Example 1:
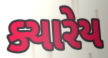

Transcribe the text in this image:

ક્યારેય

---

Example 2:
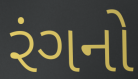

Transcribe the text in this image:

રંગનો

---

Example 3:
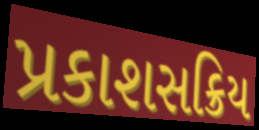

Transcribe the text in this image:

પ્રકાશસક્રિય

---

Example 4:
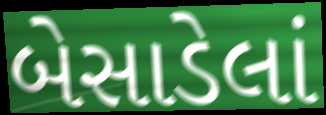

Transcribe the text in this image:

બેસાડેલાં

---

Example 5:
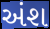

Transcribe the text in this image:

અંશ